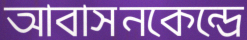
আবাসনকেন্দ্রে